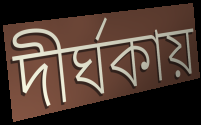
দীর্ঘকায়